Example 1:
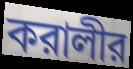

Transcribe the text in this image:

করালীর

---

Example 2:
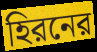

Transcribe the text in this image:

হিরনের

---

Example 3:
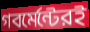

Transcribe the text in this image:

গবর্মেন্টেরই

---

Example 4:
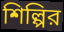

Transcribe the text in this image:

শিল্পির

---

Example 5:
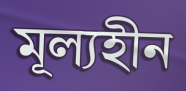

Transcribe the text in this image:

মূল্যহীন